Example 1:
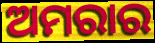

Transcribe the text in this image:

ଅମରାର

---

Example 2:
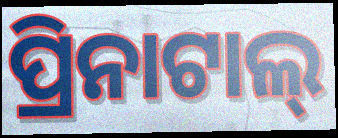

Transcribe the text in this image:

ପ୍ରିନାଟାଲ୍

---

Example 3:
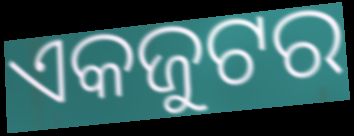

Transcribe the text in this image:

ଏକଜୁଟର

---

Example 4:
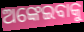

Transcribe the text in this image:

ଅଙ୍କେଇବାକୁ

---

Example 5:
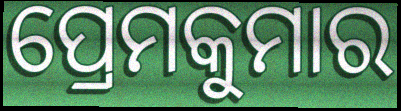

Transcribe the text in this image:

ପ୍ରେମକୁମାର